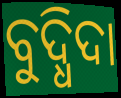
ବୁଦ୍ଧିଦା